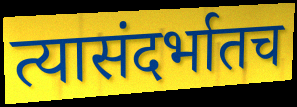
त्यासंदर्भातच